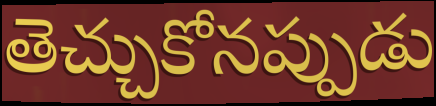
తెచ్చుకోనప్పుడు